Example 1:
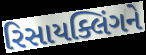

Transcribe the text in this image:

રિસાયક્લિંગને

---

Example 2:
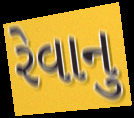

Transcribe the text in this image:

રેવાનુ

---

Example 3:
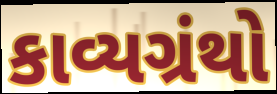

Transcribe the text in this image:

કાવ્યગ્રંથો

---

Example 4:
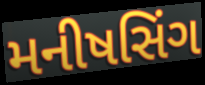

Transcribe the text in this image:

મનીષસિંગ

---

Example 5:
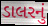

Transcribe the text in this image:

ડાલરનું